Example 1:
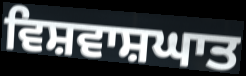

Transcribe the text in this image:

ਵਿਸ਼ਵਾਸ਼ਘਾਤ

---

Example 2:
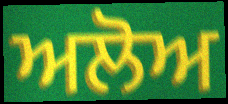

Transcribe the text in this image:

ਅਲੋਅ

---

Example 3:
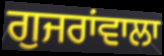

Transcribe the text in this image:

ਗੁਜਰਾਂਵਾਲਾ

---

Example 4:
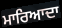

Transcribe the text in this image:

ਮਾਰਿਆਦਾ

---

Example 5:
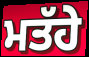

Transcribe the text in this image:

ਮਤੱਹੇ